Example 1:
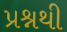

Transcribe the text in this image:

પ્રશ્નથી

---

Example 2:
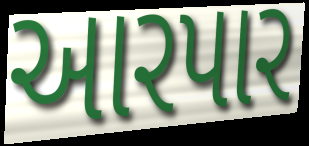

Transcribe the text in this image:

આરપાર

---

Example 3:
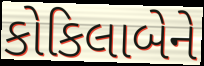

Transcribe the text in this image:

કોકિલાબેને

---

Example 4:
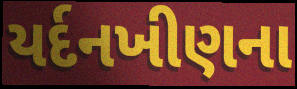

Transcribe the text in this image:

યર્દનખીણના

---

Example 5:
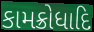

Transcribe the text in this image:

કામક્રોધાદિ